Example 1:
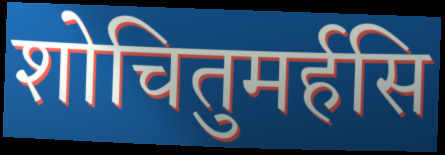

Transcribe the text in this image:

शोचितुमर्हसि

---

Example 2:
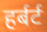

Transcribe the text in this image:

हर्बर्ट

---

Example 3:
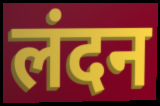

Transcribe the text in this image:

लंदन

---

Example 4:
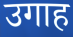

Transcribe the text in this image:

उगाह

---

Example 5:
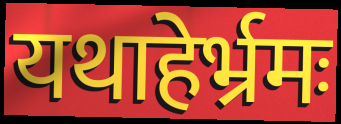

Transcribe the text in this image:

यथाहेर्भ्रमः